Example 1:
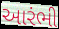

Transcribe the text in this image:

આરંભી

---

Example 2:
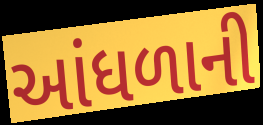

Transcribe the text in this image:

આંધળાની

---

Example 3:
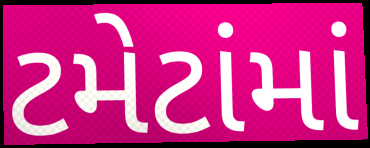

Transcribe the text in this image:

ટમેટાંમાં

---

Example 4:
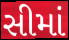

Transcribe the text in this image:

સીમાં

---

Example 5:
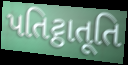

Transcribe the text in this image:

પતિટ્ઠાતૂતિ